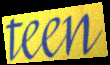
teen